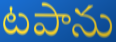
టపాను